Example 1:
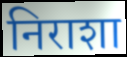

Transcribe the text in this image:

निराशा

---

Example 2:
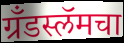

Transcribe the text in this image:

ग्रँडस्लॅमचा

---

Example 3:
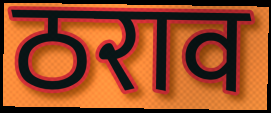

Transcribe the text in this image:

ठराव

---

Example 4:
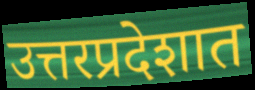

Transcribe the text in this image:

उत्तरप्रदेशात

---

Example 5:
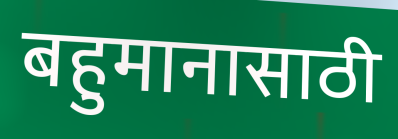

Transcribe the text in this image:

बहुमानासाठी